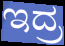
ಇದ್ರ